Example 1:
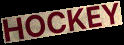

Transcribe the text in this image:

HOCKEY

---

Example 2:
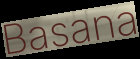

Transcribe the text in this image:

Basana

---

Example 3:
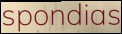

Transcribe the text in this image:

spondias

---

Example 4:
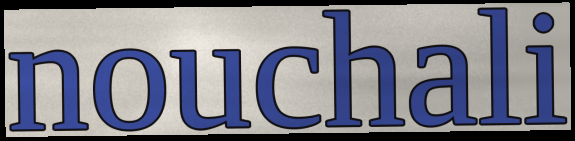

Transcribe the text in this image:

nouchali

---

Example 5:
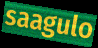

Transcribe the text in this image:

saagulo